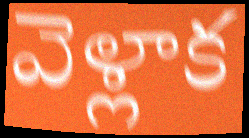
వెళ్లాక